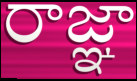
రాజ్ఞా